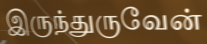
இருந்துருவேன்